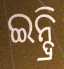
ଇନ୍ଦ୍ରି